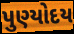
પુણ્યોદય